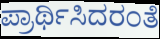
ಪ್ರಾರ್ಥಿಸಿದರಂತೆ